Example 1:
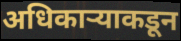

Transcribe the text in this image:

अधिकाऱ्याकडून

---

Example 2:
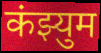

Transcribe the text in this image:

कंझ्युम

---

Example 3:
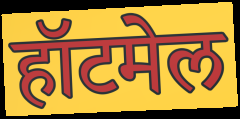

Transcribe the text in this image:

हॉटमेल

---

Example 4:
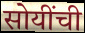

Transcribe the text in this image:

सोयींची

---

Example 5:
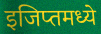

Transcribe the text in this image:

इजिप्तमध्ये